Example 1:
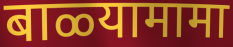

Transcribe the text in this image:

बाळ्यामामा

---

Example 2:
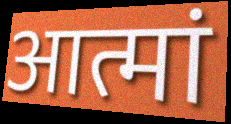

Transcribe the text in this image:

आत्मां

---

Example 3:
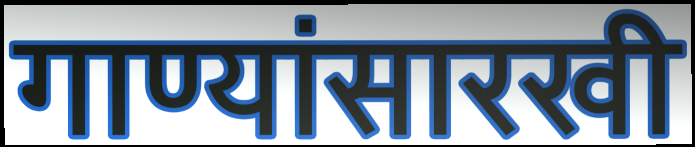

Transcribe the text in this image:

गाण्यांसारखी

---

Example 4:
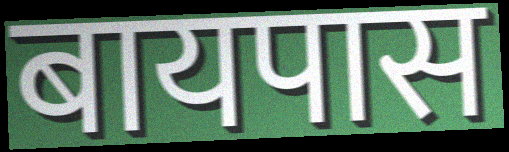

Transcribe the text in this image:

बायपास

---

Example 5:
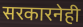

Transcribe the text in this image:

सरकारनेही